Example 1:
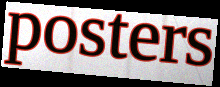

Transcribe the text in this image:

posters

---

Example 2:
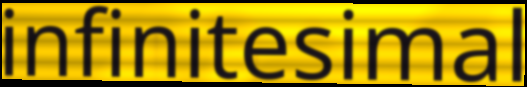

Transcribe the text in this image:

infinitesimal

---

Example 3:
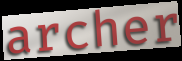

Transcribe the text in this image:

archer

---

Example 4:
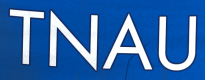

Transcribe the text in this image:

TNAU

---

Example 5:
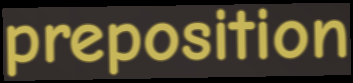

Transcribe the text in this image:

preposition